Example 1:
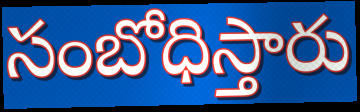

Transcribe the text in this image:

సంబోధిస్తారు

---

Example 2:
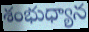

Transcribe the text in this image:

శంభుధ్యాన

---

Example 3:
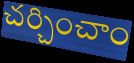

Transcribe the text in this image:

చర్చించాం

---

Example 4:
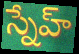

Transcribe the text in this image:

స్నేహ్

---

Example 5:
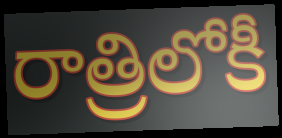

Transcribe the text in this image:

రాత్రిలోకీ